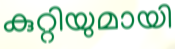
കുറ്റിയുമായി